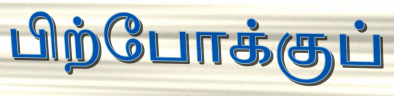
பிற்போக்குப்